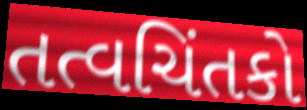
તત્વચિંતકો